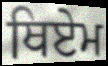
ਥਿਏਮ